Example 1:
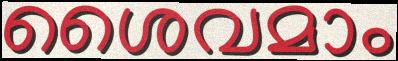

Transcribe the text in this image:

ശൈവമാം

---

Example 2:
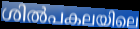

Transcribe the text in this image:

ശിൽപകലയിലെ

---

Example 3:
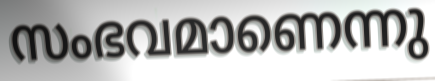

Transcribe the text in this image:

സംഭവമാണെന്നു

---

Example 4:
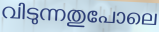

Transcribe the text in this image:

വിടുന്നതുപോലെ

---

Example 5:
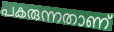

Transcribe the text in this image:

പകരുന്നതാണ്